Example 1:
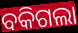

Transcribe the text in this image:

ବକିଗଲା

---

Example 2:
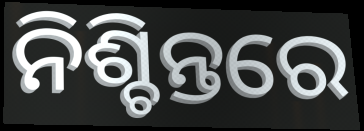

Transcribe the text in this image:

ନିଶ୍ଚିନ୍ତରେ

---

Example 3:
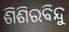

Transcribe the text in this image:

ଶିଶିରବିନ୍ଦୁ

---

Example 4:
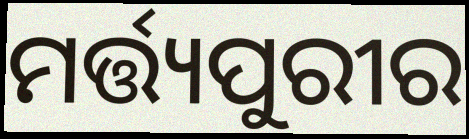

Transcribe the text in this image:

ମର୍ତ୍ତ୍ୟପୁରୀର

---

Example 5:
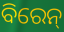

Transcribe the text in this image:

ବିରେନ୍